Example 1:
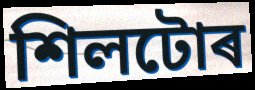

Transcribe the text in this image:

শিলটোৰ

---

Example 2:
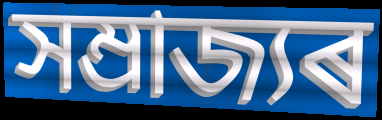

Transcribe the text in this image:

সম্ৰাজ্যৰ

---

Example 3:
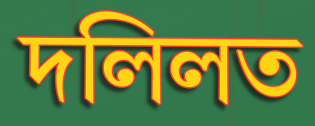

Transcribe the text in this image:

দলিলত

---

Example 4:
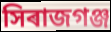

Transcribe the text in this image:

সিৰাজগঞ্জ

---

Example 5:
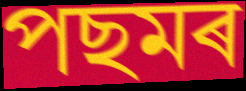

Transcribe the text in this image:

পছমৰ